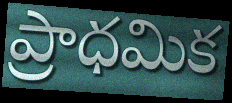
ప్రాధమిక